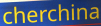
cherchina